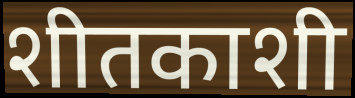
शीतकाशी